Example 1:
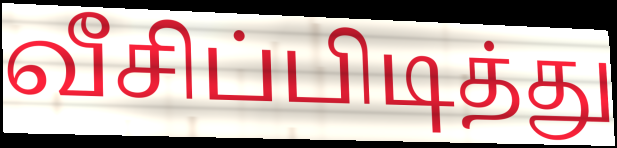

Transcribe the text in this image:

வீசிப்பிடித்து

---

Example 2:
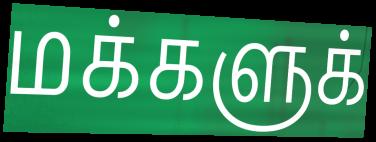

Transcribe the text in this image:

மக்களுக்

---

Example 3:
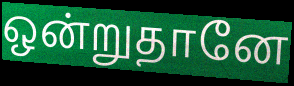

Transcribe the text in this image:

ஒன்றுதானே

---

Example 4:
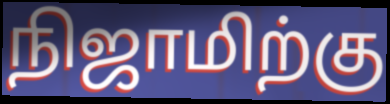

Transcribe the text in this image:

நிஜாமிற்கு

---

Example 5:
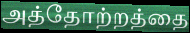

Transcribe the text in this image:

அத்தோற்றத்தை